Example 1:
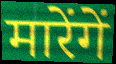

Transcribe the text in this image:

मारेंगें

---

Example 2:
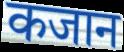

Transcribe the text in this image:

कजान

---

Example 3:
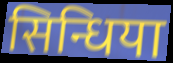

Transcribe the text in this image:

सिन्धिया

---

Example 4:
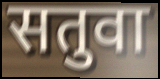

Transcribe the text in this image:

सतुवा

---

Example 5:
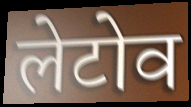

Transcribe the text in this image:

लेटोव